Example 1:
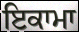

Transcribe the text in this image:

ਇਕਾਮਾ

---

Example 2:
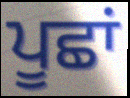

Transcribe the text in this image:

ਪੂਛਾਂ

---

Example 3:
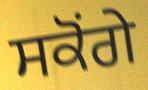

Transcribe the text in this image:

ਸਕੋਂਗੇ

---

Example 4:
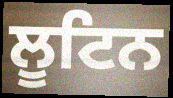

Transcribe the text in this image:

ਲੂਟਿਨ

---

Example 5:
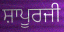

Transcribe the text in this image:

ਸ਼ਾਪੂਰਜੀ